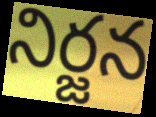
నిర్జన